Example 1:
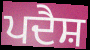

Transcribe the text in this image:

ਪਦੈਸ਼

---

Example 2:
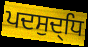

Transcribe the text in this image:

ਪਦਸੁਦ੍ਧਿ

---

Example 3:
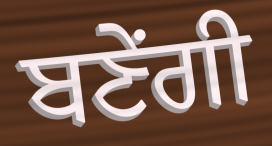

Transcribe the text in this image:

ਬਣੇਂਗੀ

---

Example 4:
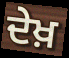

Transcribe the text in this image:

ਦੇਖ਼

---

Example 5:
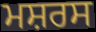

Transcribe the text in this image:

ਮਸ਼ਰਸ